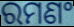
ରମଣଂ